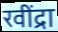
रवींद्रा